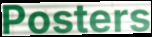
Posters